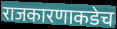
राजकारणाकडेच